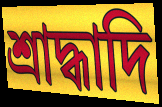
শ্রাদ্ধাদি